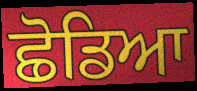
ਛੋਡਿਆ